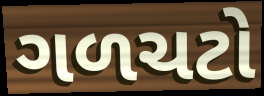
ગળચટો